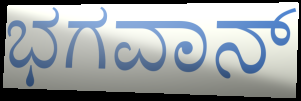
ಭಗವಾನ್